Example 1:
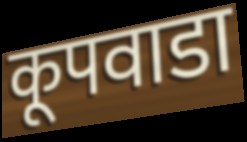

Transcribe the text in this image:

कूपवाडा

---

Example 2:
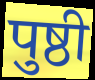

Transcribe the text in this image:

पुष्ठी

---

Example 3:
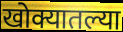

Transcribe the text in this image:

खोक्यातल्या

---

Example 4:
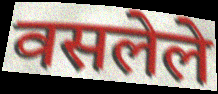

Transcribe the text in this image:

वसलेले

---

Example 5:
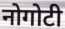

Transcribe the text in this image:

नोगोटी